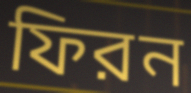
ফিরন